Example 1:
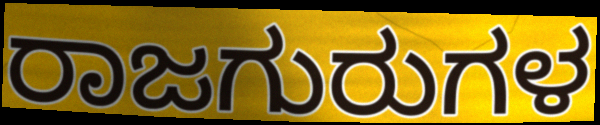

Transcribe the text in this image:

ರಾಜಗುರುಗಳ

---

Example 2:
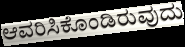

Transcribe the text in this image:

ಆವರಿಸಿಕೊಂಡಿರುವುದು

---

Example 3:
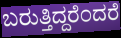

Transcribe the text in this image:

ಬರುತ್ತಿದ್ದರೆಂದರೆ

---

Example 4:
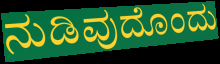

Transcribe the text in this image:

ನುಡಿವುದೊಂದು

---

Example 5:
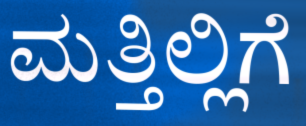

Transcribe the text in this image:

ಮತ್ತಿಲ್ಲಿಗೆ